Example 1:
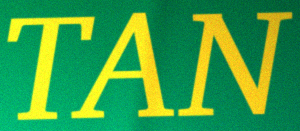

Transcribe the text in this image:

TAN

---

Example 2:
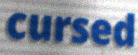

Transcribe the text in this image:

cursed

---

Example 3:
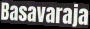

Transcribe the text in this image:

Basavaraja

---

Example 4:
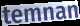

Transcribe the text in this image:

temnan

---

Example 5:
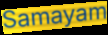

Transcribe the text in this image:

Samayam